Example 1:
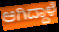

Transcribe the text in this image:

ಆಗಿದ್ದಾಳೆ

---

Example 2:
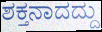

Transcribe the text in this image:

ಶಕ್ತನಾದದ್ದು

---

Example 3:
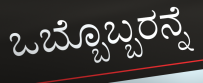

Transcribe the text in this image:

ಒಬ್ಬೊಬ್ಬರನ್ನೆ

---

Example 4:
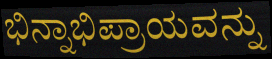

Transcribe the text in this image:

ಭಿನ್ನಾಭಿಪ್ರಾಯವನ್ನು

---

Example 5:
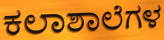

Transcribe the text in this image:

ಕಲಾಶಾಲೆಗಳ